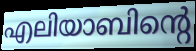
എലിയാബിന്റെ